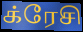
க்ரேசி